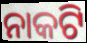
ନାକଟି